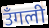
उँगली